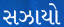
સઝાયો